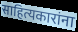
साहित्यकारांना